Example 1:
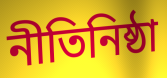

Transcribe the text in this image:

নীতিনিষ্ঠা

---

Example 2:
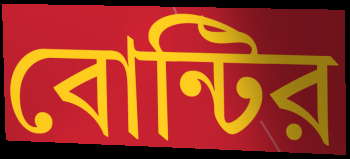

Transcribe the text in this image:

বোন্টির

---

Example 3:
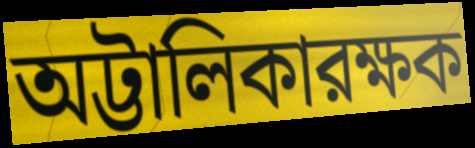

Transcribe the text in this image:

অট্টালিকারক্ষক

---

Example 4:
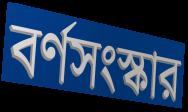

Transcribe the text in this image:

বর্ণসংস্কার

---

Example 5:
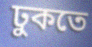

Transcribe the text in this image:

ঢুকতে